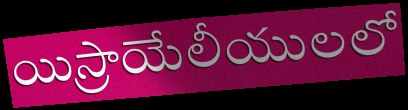
యిస్రాయేలీయులలో